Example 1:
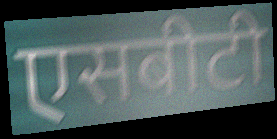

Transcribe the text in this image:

एसबीटी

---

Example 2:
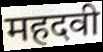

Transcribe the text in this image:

महदवी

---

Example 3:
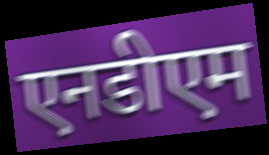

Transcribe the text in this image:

एनडीएम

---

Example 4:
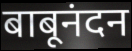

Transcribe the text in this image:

बाबूनंदन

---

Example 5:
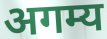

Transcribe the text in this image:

अगम्य